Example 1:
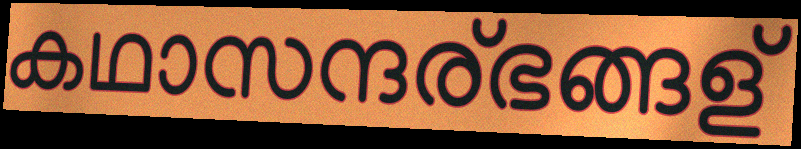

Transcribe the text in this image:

കഥാസന്ദര്ഭങ്ങള്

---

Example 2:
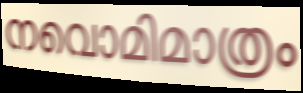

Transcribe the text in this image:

നവൊമിമാത്രം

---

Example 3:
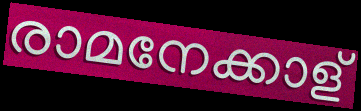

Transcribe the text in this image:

രാമനേക്കാള്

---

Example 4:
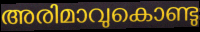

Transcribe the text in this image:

അരിമാവുകൊണ്ടു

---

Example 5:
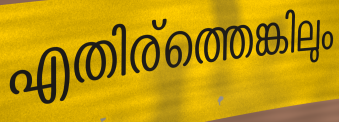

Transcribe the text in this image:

എതിര്ത്തെങ്കിലും